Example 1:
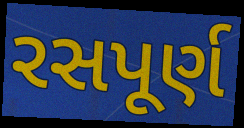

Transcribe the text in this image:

રસપૂર્ણ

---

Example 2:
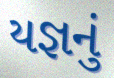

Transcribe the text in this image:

યજ્ઞનું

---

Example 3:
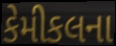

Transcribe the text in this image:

કેમીકલના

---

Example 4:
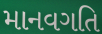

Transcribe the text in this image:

માનવગતિ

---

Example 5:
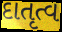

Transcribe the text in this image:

દાતૃત્વ